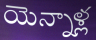
యెన్నాళ్ల